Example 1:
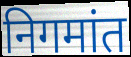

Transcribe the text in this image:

निगमांत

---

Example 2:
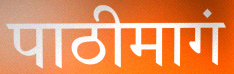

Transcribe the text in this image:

पाठीमागं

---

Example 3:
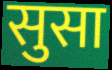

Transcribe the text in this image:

सुसा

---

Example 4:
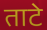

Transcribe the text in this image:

ताटे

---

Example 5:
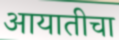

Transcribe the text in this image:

आयातीचा